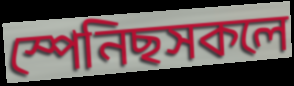
স্পেনিছসকলে